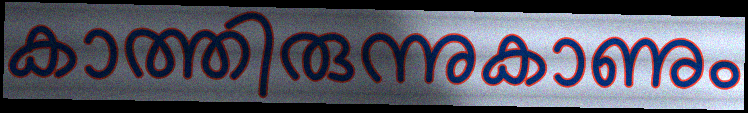
കാത്തിരുന്നുകാണും